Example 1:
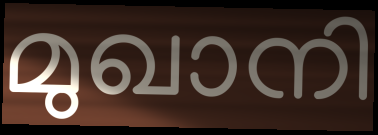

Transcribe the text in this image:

മുഖാനി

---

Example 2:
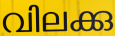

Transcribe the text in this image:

വിലക്കു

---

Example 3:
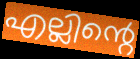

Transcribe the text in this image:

എല്ലിന്റെ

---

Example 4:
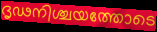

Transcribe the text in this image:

ദൃഢനിശ്ചയത്തോടെ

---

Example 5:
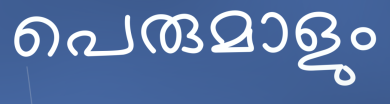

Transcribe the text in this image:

പെരുമാളും